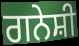
ਗਨੇਸ਼ੀ